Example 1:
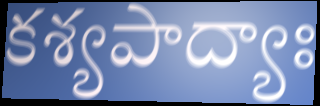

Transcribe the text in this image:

కశ్యపాద్యాః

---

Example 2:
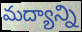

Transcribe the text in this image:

మద్యాన్ని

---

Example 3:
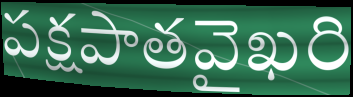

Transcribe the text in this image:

పక్షపాతవైఖరి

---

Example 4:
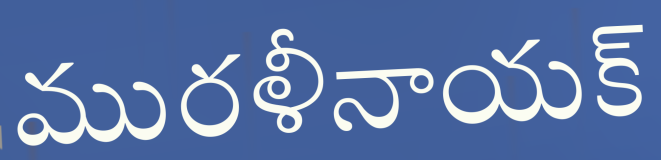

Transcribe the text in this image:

మురళీనాయక్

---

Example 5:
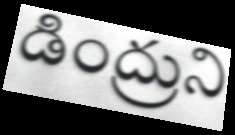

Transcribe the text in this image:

డింద్రుని